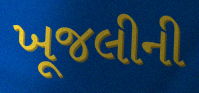
ખૂજલીની